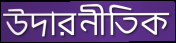
উদারনীতিক